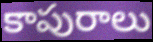
కాపురాలు